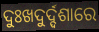
ଦୁଃଖଦୁର୍ଦ୍ଦଶାରେ